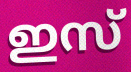
ഇസ്